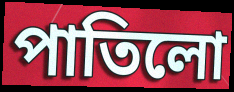
পাতিলো